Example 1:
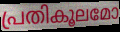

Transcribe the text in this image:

പ്രതികൂലമോ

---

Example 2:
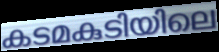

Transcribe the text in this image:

കടമകുടിയിലെ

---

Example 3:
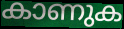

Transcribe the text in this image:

കാണുക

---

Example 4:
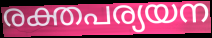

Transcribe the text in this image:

രക്തപര്യയന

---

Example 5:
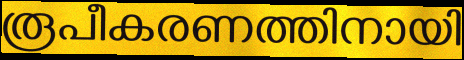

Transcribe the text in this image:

രൂപീകരണത്തിനായി